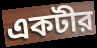
একটীর